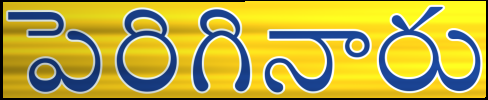
పెరిగినారు